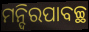
ମନ୍ଦିରପାବଚ୍ଛ